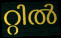
റ്റിൽ